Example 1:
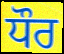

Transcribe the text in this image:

ਧੌਰ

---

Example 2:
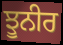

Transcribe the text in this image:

ਝੂਨੀਰ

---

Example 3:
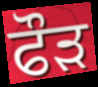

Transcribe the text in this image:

ਫੌਡ਼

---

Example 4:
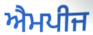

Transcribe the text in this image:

ਐਮਪੀਜ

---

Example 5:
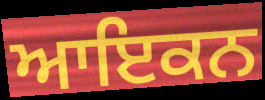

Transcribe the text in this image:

ਆਇਕਨ